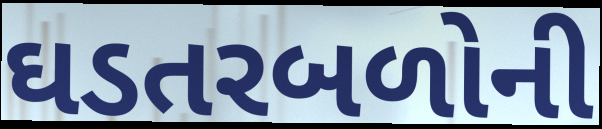
ઘડતરબળોની